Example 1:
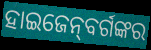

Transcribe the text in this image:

ହାଇଜେନ୍‌ବର୍ଗଙ୍କର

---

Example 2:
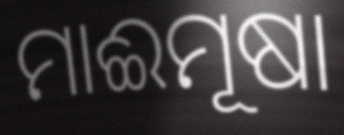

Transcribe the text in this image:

ମାଈମୂଷା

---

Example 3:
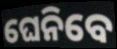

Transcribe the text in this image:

ଘେନିବେ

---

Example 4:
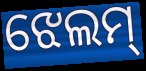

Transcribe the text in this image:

ଝେଲମ୍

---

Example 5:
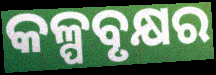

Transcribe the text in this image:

କଳ୍ପବୃକ୍ଷର